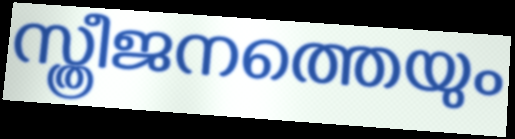
സ്ത്രീജനത്തെയും